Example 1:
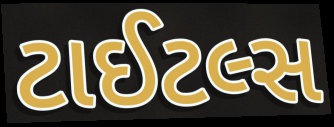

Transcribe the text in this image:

ટાઈટલ્સ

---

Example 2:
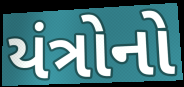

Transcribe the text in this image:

યંત્રોનો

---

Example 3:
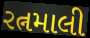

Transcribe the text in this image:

રત્નમાલી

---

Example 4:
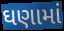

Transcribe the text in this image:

ઘણામાં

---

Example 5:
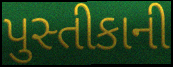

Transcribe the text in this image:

પુસ્તીકાની